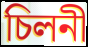
চিলনী